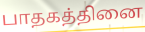
பாதகத்தினை